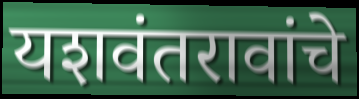
यशवंतरावांचे